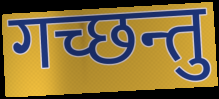
गच्छन्तु